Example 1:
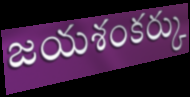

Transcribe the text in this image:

జయశంకర్కు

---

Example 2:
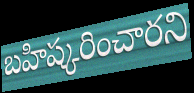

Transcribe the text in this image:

బహిష్కరించారని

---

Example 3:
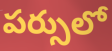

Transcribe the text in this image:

పర్సులో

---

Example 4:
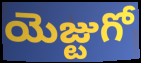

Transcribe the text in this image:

యెజ్టుగో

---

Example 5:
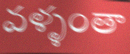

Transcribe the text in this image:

వళ్ళంతా